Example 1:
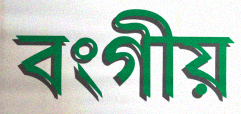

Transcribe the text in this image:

বংগীয়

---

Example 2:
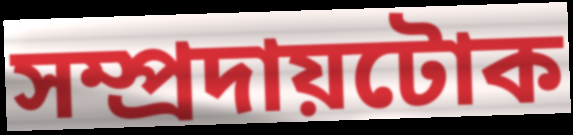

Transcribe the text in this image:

সম্প্ৰদায়টোক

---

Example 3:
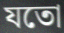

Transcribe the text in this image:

যতো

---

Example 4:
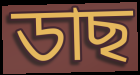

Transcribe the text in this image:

ডাছ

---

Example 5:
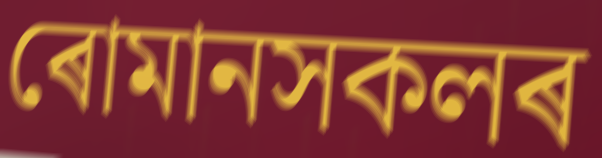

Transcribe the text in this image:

ৰোমানসকলৰ